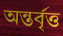
অন্তৰ্বৃত্ত